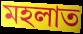
মহলাত